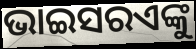
ଭାଇସରଏଙ୍କୁ